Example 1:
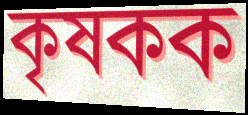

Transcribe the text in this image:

কৃষকক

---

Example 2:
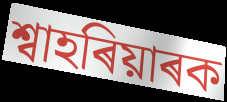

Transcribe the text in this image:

শ্বাহৰিয়াৰক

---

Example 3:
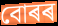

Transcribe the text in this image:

বোৰৰ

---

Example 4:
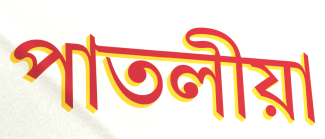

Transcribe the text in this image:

পাতলীয়া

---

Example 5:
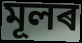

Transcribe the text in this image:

মূলৰ